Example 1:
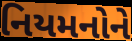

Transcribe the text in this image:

નિયમનોને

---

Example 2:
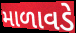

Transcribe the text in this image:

માળાવડે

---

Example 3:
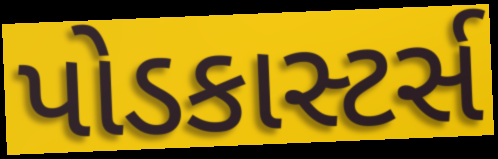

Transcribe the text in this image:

પોડકાસ્ટર્સ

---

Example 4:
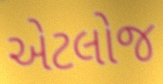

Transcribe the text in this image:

એટલોજ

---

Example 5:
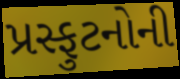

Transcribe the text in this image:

પ્રસ્ફુટનોની